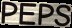
PEPS